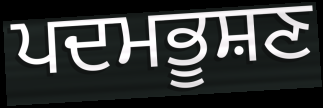
ਪਦਮਭੂਸ਼ਣ